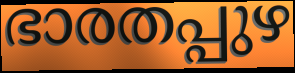
ഭാരതപ്പുഴ